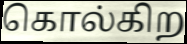
கொல்கிற